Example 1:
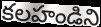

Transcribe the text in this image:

కలహండిని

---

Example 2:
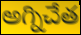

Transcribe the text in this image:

అగ్నిచేత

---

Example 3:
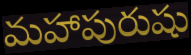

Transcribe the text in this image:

మహాపురుషు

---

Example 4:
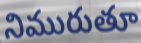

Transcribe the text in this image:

నిమురుతూ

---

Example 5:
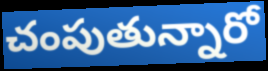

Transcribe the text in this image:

చంపుతున్నారో